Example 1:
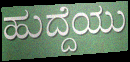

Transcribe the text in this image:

ಹುದ್ದೆಯು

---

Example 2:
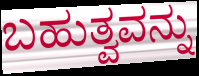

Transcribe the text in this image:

ಬಹುತ್ವವನ್ನು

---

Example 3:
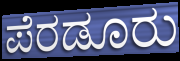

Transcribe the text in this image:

ಪೆರಡೂರು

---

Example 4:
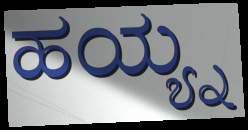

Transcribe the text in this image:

ಹಯ್ಯ್ನ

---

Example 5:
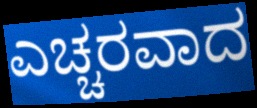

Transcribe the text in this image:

ಎಚ್ಚರವಾದ